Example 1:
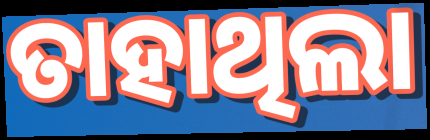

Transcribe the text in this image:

ତାହାଥିଲା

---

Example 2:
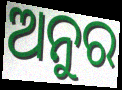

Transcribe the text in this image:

ଅନୁର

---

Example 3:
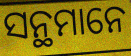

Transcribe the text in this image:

ସନ୍ଥମାନେ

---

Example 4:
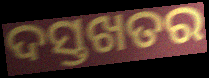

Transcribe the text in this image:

ଦସ୍ତଖତର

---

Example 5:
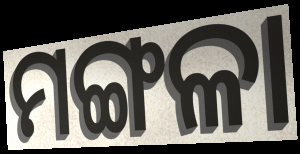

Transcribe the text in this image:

ମଙ୍ଗଳା